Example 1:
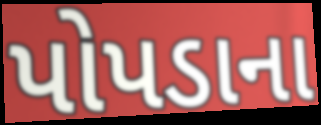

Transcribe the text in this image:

પોપડાના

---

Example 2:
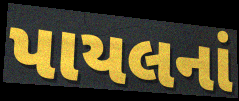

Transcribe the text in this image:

પાયલનાં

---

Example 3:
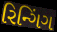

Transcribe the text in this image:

રિન્ગિંગ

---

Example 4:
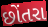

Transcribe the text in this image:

છોંતરા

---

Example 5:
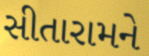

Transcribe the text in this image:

સીતારામને